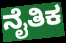
ನೈತಿಕ